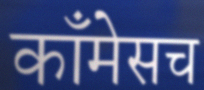
कॉंमेसच